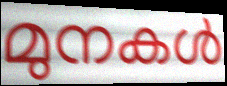
മുനകൾ